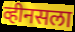
व्हीनसला